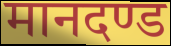
मानदण्ड